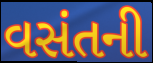
વસંતની